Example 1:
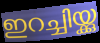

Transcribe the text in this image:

ഇറച്ചിയ്ക്കു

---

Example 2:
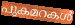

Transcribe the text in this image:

പുകമറകൾ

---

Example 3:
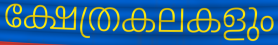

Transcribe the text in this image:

ക്ഷേത്രകലകളും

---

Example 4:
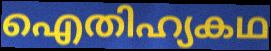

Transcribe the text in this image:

ഐതിഹ്യകഥ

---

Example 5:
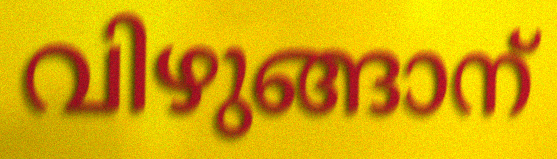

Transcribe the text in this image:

വിഴുങ്ങാന്